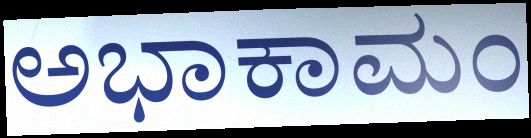
ಅಭಾಕಾಮಂ